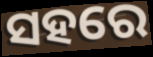
ସହରେ